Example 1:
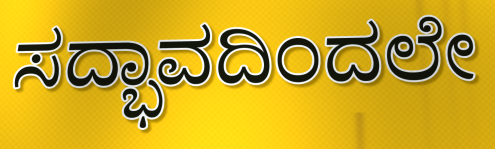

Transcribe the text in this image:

ಸದ್ಭಾವದಿಂದಲೇ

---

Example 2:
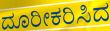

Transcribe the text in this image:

ದೂರೀಕರಿಸಿದ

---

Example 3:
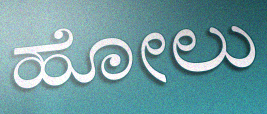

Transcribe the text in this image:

ಹೋಲು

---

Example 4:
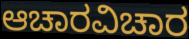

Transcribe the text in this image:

ಆಚಾರವಿಚಾರ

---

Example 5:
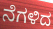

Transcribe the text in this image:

ನೆಗಳಿದ